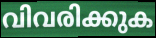
വിവരിക്കുക